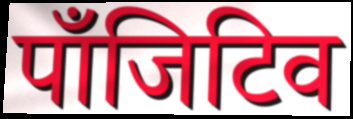
पाँजिटिव